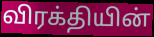
விரக்தியின்